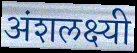
अंशलक्ष्यी